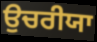
ਉਚਰੀਯਾ